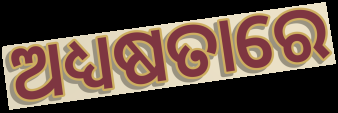
ଅଧ୍ୟଷତାରେ